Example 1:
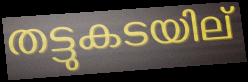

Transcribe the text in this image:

തട്ടുകടയില്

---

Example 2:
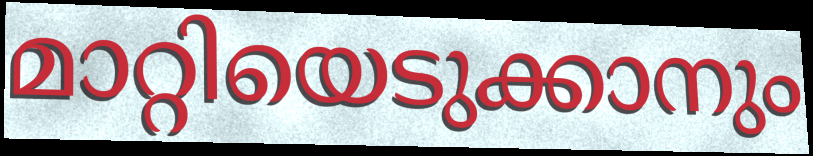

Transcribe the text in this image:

മാറ്റിയെടുക്കാനും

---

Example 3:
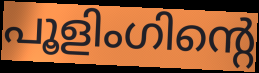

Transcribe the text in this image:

പൂളിംഗിന്റെ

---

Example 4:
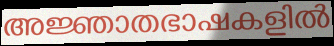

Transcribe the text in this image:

അജ്ഞാതഭാഷകളിൽ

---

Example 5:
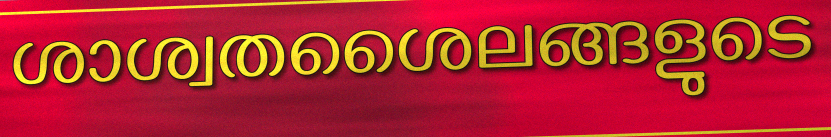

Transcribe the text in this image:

ശാശ്വതശൈലങ്ങളുടെ